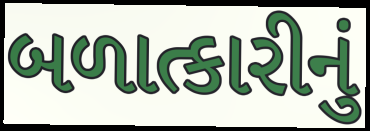
બળાત્કારીનું